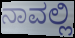
ನಾವಲ್ಲಿ